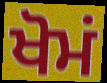
ਖੋਮਂ